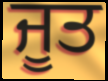
ਜੂਤ